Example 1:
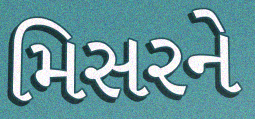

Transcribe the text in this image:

મિસરને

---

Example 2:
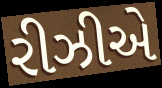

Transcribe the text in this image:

રીઝીએ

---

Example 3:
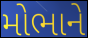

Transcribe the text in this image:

મોભાને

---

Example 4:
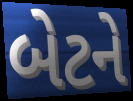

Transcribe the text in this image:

બેટને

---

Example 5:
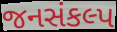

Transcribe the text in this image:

જનસંકલ્પ